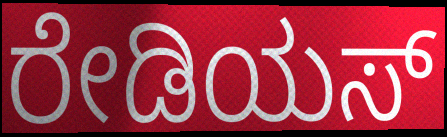
ರೇಡಿಯಸ್